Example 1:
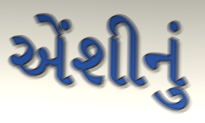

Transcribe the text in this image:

એંશીનું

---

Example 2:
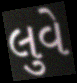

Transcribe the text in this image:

લુવે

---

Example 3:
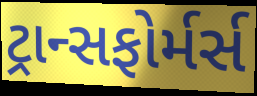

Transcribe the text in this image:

ટ્રાન્સફોર્મર્સ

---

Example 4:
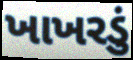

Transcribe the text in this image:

ખાખરડું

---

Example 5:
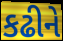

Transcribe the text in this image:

કઢીને